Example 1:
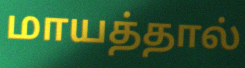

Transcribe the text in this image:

மாயத்தால்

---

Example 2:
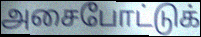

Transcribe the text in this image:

அசைபோட்டுக்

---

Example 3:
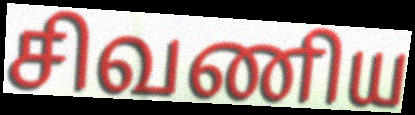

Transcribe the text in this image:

சிவணிய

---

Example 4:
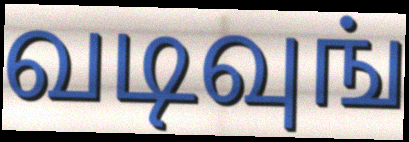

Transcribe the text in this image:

வடிவுங்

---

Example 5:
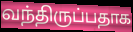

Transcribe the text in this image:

வந்திருப்பதாக